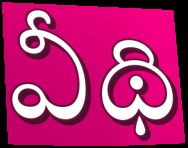
వీథి